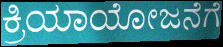
ಕ್ರಿಯಾಯೋಜನೆಗೆ